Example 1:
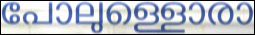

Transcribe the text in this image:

പോലുള്ളൊരാ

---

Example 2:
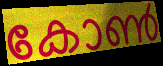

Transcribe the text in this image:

കോൺ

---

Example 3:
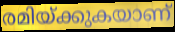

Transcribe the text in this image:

രമിയ്ക്കുകയാണ്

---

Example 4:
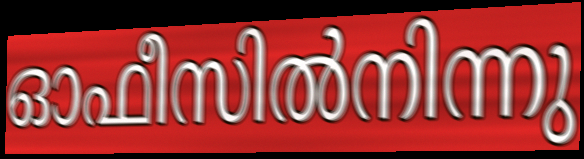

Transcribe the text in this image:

ഓഫീസിൽനിന്നു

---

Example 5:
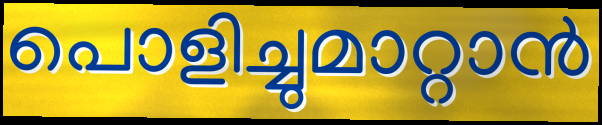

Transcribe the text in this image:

പൊളിച്ചുമാറ്റാൻ